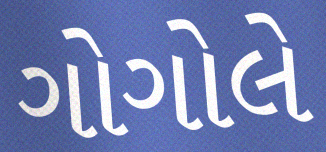
ગોગોલે